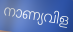
നാണ്യവിള